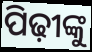
ପିଢ଼ୀଙ୍କୁ